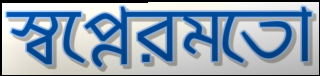
স্বপ্নেরমতো